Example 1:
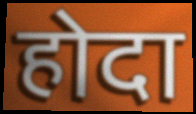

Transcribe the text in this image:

होदा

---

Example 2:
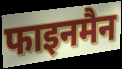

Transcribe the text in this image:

फाइनमैन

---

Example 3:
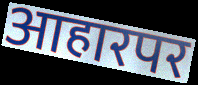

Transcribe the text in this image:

आहारपर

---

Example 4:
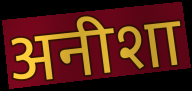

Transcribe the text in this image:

अनीशा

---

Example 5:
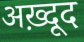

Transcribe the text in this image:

अख़्दूद